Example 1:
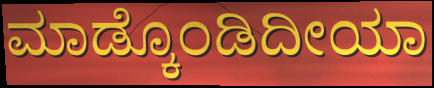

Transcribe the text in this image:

ಮಾಡ್ಕೊಂಡಿದೀಯಾ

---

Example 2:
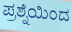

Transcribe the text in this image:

ಪ್ರಶ್ನೆಯಿಂದ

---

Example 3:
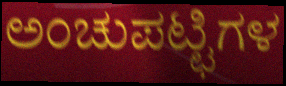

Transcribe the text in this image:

ಅಂಚುಪಟ್ಟಿಗಳ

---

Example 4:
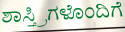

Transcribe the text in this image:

ಶಾಸ್ತ್ರಿಗಳೊಂದಿಗೆ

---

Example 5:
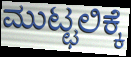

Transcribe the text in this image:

ಮುಟ್ಟಲಿಕ್ಕೆ